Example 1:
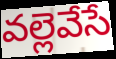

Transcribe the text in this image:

వల్లెవేసే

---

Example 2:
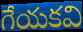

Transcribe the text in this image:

గేయకవి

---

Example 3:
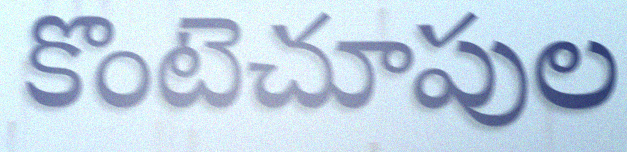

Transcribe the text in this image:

కొంటెచూపుల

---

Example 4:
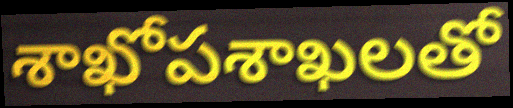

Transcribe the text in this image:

శాఖోపశాఖలతో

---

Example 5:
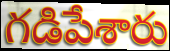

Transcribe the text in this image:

గడిపేశారు